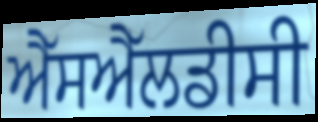
ਐੱਸਐੱਲਡੀਸੀ